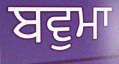
ਬਵੁਮਾ